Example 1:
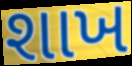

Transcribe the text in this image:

શાખ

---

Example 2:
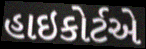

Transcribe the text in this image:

હાઇકોર્ટએ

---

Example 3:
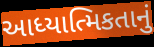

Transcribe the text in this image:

આધ્યાત્મિકતાનું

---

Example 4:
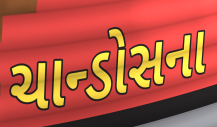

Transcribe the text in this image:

ચાન્ડોસના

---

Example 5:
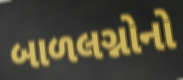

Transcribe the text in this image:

બાળલગ્નોનો